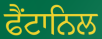
ਫੈਂਟਾਨਿਲ